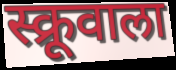
स्क्रूवाला